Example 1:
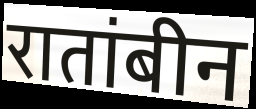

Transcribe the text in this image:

रातांबीन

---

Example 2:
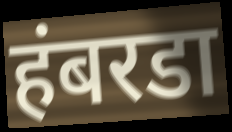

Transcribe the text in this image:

हंबरडा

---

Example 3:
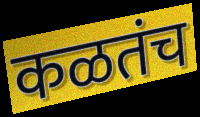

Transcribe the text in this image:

कळतंच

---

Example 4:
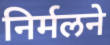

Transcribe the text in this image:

निर्मलने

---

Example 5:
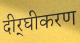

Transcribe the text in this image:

दीर्घीकरण